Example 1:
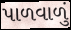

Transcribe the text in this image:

પાળવાળું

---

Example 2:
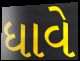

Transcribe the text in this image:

ધાવે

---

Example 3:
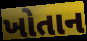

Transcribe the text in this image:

ખોતાન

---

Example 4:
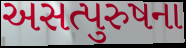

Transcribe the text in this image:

અસત્પુરુષના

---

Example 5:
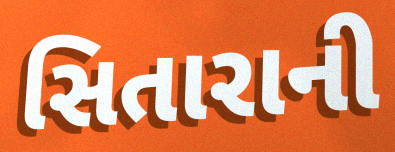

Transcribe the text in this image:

સિતારાની